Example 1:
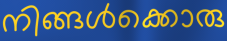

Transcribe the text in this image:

നിങ്ങൾക്കൊരു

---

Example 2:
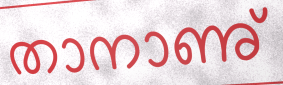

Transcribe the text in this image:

താനാണു്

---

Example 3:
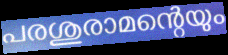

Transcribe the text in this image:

പരശുരാമന്റെയും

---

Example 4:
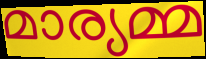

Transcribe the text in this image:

മാര്യമ്മ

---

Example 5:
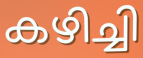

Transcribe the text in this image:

കഴിച്ചി